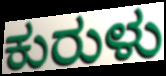
ಕುರುಳು